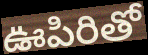
ఊపిరితో